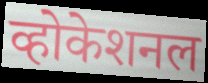
व्होकेशनल